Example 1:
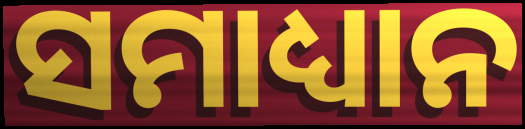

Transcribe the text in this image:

ସମାଧ୍ୟାନ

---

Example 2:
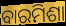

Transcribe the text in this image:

ବାରମିଶା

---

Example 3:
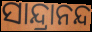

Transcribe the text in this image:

ସାନ୍ଦ୍ରାନନ୍ଦ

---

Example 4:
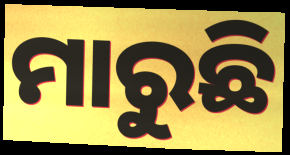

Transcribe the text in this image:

ମାରୁଛି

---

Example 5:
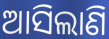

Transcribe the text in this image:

ଆସିଲାଣି